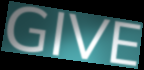
GIVE